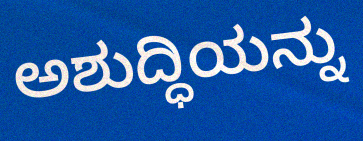
ಅಶುದ್ಧಿಯನ್ನು